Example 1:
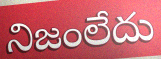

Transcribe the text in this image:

నిజంలేదు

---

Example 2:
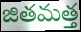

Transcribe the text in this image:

జితమత్త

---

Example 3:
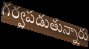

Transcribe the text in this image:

గర్వపడుతున్నారు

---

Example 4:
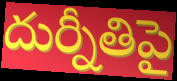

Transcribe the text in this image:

దుర్నీతిపై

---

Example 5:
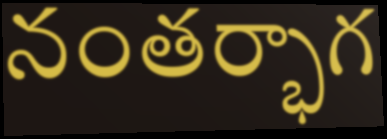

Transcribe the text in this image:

నంతర్భాగ